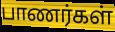
பாணர்கள்